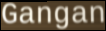
Gangan